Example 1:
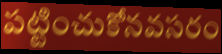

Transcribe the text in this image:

పట్టించుకోనవసరం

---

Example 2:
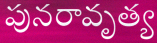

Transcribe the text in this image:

పునరావృత్య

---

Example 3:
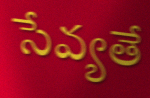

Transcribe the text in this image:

సేవ్యతే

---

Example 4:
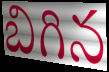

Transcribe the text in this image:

బిగిన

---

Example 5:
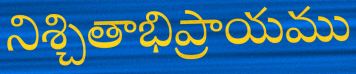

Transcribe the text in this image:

నిశ్చితాభిప్రాయము